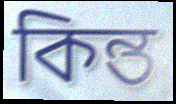
কিন্ত